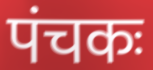
पंचकः